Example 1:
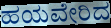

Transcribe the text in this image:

ಹಯವೇರಿದ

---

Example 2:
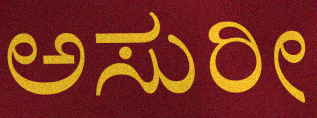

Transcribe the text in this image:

ಅಸುರೀ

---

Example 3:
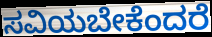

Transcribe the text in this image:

ಸವಿಯಬೇಕೆಂದರೆ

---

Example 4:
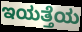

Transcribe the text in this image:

ಇಯತ್ತೆಯ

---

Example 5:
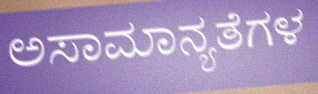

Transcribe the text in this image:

ಅಸಾಮಾನ್ಯತೆಗಳ